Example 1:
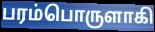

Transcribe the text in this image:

பரம்பொருளாகி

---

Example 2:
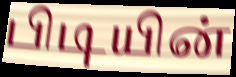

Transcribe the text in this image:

பிடியின்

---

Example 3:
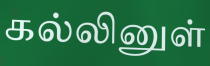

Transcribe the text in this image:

கல்லினுள்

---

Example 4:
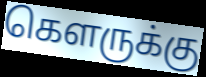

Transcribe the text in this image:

கௌருக்கு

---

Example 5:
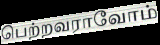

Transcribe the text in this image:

பெற்றவராவோம்